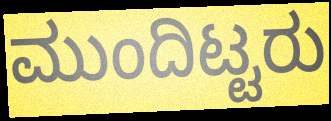
ಮುಂದಿಟ್ಟರು